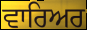
ਵਾਰਿਅਰ